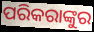
ପରିକରାଙ୍କୁର